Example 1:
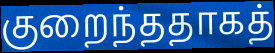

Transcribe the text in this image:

குறைந்ததாகத்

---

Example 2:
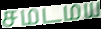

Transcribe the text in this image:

சமடமய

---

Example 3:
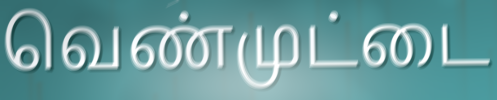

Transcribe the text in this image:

வெண்முட்டை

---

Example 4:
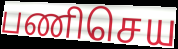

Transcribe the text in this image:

பணிசெய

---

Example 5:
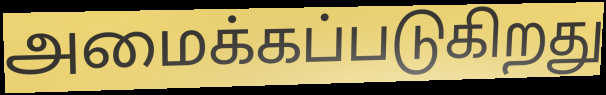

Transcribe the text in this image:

அமைக்கப்படுகிறது